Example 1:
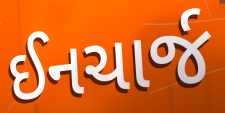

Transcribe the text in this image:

ઈનચાર્જ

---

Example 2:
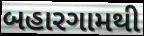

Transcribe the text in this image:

બહારગામથી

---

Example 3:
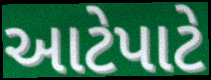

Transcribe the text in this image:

આટેપાટે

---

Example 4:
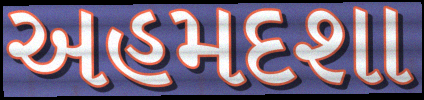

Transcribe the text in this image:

અહમદશા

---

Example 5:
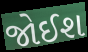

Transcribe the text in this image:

જોઈશ